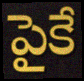
పైకే